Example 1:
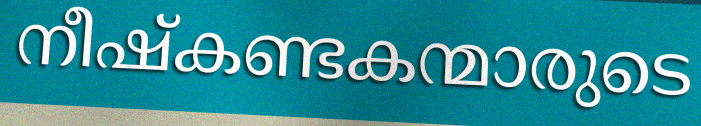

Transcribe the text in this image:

നീഷ്കണ്ടകന്മാരുടെ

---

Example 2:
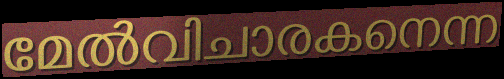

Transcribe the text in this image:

മേൽവിചാരകനെന്ന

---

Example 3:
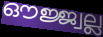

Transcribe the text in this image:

ഔജ്ജ്വല്ല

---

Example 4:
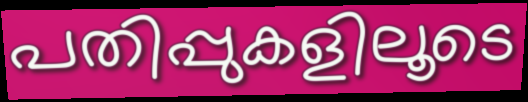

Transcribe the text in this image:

പതിപ്പുകളിലൂടെ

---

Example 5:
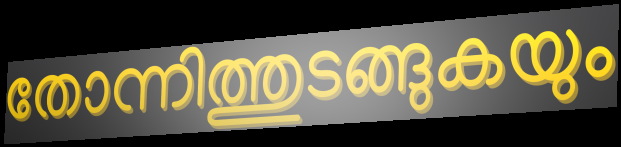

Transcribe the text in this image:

തോന്നിത്തുടങ്ങുകയും